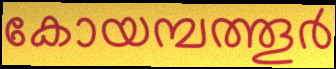
കോയമ്പത്തൂർ